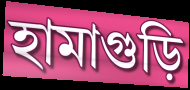
হামাগুড়ি